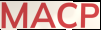
MACP